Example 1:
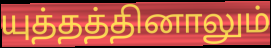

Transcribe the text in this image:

யுத்தத்தினாலும்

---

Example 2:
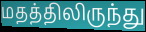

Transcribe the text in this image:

மதத்திலிருந்து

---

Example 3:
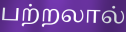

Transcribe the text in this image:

பற்றலால்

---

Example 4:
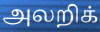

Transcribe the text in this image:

அலறிக்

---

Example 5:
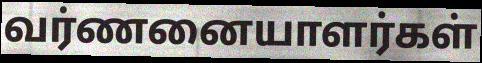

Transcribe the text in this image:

வர்ணனையாளர்கள்